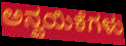
ಅನ್ವಯಿಕೆಗಳು